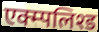
एक्म्पलिश्ड